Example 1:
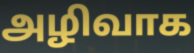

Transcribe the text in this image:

அழிவாக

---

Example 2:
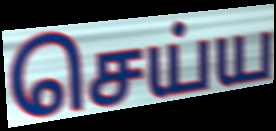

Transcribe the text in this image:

செய்ய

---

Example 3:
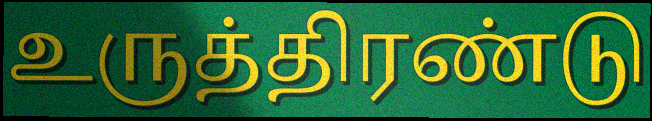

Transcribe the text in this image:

உருத்திரண்டு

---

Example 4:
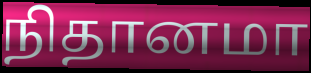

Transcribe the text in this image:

நிதானமா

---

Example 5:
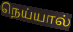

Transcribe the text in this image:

நெய்யால்